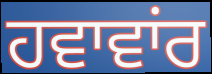
ਹਵਾਵਾਂਰ